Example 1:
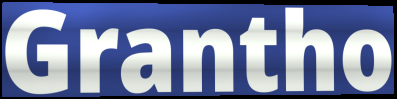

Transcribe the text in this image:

Grantho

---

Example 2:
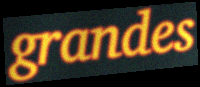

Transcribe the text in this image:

grandes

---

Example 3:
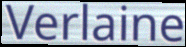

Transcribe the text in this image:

Verlaine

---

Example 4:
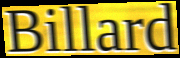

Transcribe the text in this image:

Billard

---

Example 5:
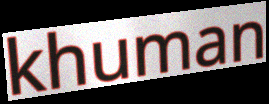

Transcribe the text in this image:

khuman